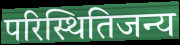
परिस्थितिजन्य